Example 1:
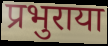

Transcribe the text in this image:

प्रभुराया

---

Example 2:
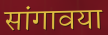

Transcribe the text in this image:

सांगावया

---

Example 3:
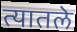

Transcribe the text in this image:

त्‍यातले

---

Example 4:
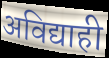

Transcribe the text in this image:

अविद्याही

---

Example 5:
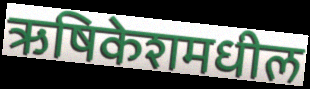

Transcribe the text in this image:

ऋषिकेशमधील